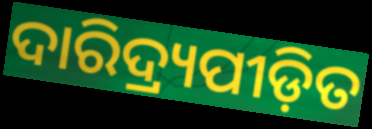
ଦାରିଦ୍ର୍ୟପୀଡ଼ିତ